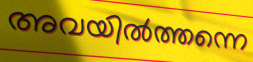
അവയിൽത്തന്നെ